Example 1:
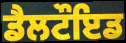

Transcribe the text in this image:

ਡੈਲਟੌਇਡ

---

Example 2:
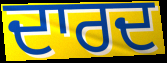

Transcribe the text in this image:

ਦਾਰਦ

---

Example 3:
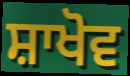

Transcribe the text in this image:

ਸ਼ਾਖੋਵ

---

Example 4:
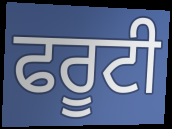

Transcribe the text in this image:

ਫਰੂਟੀ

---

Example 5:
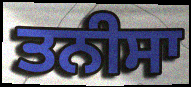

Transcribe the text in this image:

ਤਨੀਸਾ